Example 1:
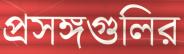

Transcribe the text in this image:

প্রসঙ্গগুলির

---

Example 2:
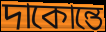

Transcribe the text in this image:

দাকোন্তে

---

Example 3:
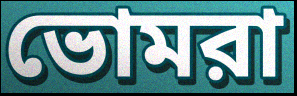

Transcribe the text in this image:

ভোমরা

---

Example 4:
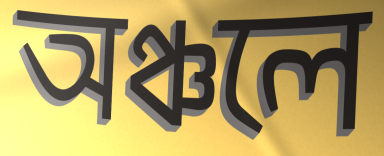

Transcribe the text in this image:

অঞ্চলে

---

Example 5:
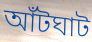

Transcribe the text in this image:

আঁটঘাট